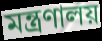
মন্ত্রণালয়